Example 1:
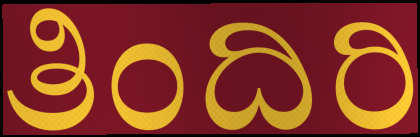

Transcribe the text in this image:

ತಿಂದಿರಿ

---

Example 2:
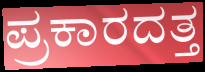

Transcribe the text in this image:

ಪ್ರಕಾರದತ್ತ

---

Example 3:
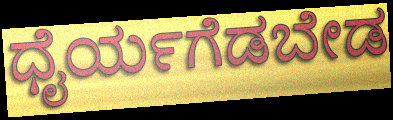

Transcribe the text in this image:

ಧೈರ್ಯಗೆಡಬೇಡ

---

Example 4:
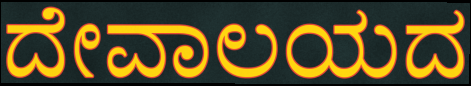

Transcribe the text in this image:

ದೇವಾಲಯದ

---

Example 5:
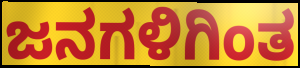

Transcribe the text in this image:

ಜನಗಳಿಗಿಂತ